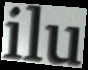
ilu